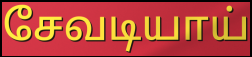
சேவடியாய்